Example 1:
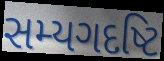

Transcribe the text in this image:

સમ્યગદષ્ટિ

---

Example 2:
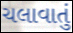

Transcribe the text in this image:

ચલાવાતું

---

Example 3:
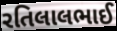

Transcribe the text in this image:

રતિલાલભાઈ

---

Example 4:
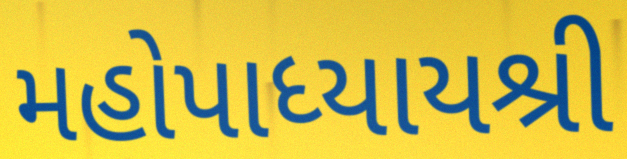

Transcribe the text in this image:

મહોપાધ્યાયશ્રી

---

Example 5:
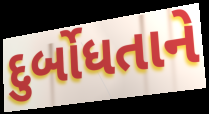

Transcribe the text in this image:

દુર્બોધતાને